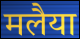
मलैया